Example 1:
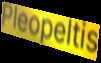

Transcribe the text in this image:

Pleopeltis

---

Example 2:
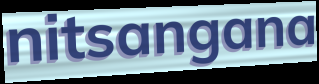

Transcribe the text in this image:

nitsangana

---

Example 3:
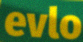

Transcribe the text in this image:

evlo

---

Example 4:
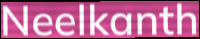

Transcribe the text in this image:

Neelkanth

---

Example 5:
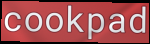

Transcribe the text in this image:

cookpad